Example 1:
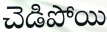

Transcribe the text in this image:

చెడిపోయి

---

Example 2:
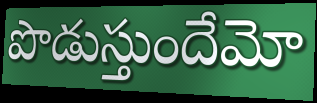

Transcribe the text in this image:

పొడుస్తుందేమో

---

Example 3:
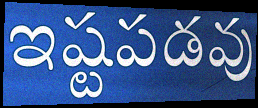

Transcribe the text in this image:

ఇష్టపడవు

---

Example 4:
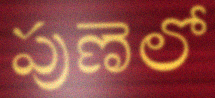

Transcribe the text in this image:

పుణెలో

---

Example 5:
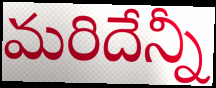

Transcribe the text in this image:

మరిదేన్నీ